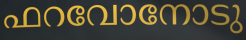
ഫറവോനോടു